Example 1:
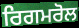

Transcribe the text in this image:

ਰਿਗਮਰੋਲ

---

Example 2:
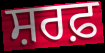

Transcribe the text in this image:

ਸ਼ਰਫ਼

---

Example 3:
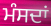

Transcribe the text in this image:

ਮੰਸਦਾਂ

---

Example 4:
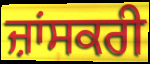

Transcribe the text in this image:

ਜ਼ਾਂਸਕਰੀ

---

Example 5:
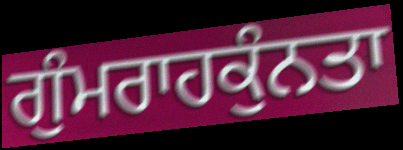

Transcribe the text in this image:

ਗੁੰਮਰਾਹਕੁੰਨਤਾ